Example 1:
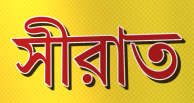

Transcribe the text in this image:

সীরাত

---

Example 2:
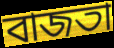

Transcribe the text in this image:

বাজতা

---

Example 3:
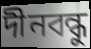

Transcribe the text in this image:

দীনবন্ধু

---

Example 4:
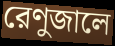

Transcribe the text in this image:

রেণুজালে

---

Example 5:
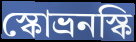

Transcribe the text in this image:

স্কোভ্রনস্কি